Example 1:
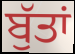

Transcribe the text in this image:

ਬੁੱਤਾਂ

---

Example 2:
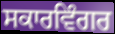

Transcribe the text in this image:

ਸਕਾਰਵਿੰਗਰ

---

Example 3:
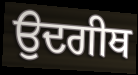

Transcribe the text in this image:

ਉਦਗੀਥ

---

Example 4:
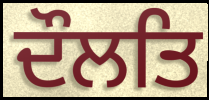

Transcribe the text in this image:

ਦੌਲਤਿ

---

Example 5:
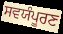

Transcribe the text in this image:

ਸਵਯੰਪੂਰਣ